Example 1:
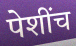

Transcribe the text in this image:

पेशींच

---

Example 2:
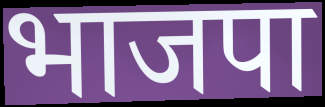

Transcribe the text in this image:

भाजपा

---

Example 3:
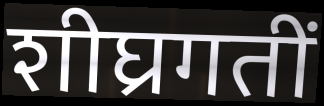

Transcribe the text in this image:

शीघ्रगतीं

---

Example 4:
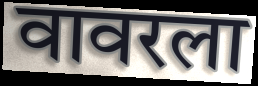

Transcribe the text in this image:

वावरला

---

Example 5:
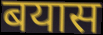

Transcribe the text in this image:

बयास